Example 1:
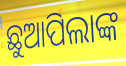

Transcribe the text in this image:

ଛୁଆପିଲାଙ୍କ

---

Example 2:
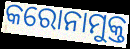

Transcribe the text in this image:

କରୋନାମୁକ୍ତ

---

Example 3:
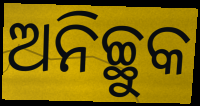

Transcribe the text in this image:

ଅନିଚ୍ଛୁକ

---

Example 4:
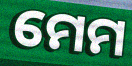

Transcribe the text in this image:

ମେମ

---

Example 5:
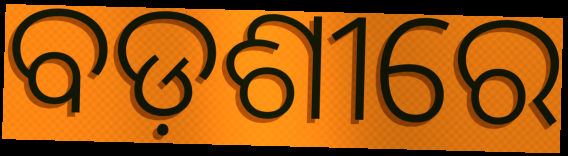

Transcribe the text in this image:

ବଡ଼ଶୀରେ